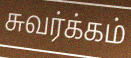
சுவர்க்கம்